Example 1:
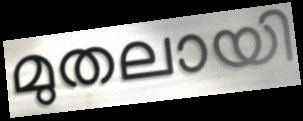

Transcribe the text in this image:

മുതലായി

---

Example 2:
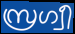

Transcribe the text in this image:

സ്രഗ്വീ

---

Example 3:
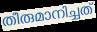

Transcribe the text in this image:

തീരുമാനിച്ചത്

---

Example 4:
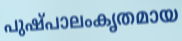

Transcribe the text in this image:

പുഷ്പാലംകൃതമായ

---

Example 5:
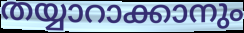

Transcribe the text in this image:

തയ്യാറാക്കാനും